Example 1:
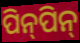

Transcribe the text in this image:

ପିନ୍‍ପିନ୍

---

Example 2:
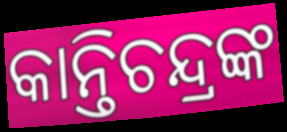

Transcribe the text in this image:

କାନ୍ତିଚନ୍ଦ୍ରଙ୍କ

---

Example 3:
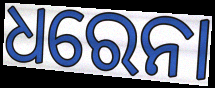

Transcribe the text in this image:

ଧରେନା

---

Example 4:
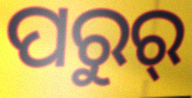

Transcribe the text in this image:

ପରୁର୍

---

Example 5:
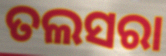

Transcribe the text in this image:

ତଲସରା